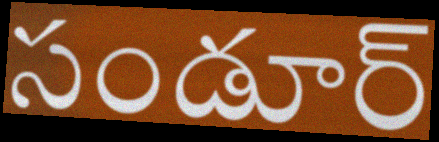
సండూర్